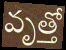
వృత్తో